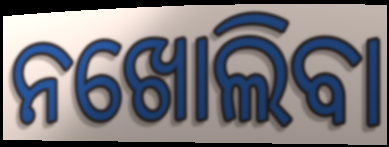
ନଖୋଲିବା